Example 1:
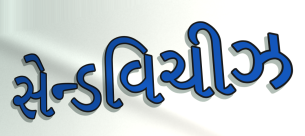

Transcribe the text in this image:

સેન્ડવિચીઝ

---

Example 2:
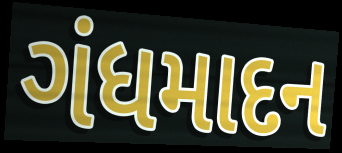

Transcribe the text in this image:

ગંધમાદન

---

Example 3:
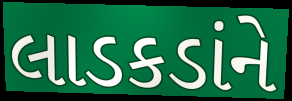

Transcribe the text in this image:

લાડકડાંને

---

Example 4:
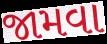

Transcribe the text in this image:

જામવા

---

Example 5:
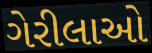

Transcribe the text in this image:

ગેરીલાઓ